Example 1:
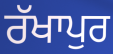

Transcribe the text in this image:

ਰੱਖਾਪੁਰ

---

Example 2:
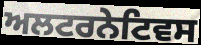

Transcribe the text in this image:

ਅਲਟਰਨੇਟਿਵਸ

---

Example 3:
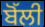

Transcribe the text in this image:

ਬੋੱਲੀ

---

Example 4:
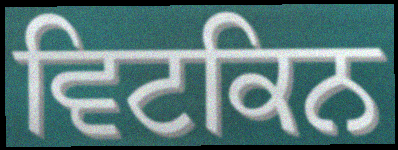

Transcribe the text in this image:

ਵਿਟਕਿਨ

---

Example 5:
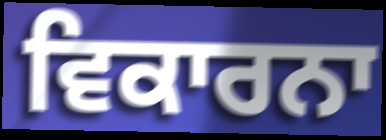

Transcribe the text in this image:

ਵਿਕਾਰਨਾ